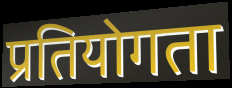
प्रतियोगता